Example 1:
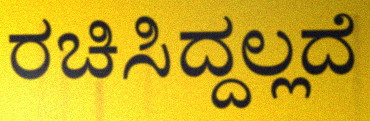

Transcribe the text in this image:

ರಚಿಸಿದ್ದಲ್ಲದೆ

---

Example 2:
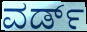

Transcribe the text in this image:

ವರ್ಡ್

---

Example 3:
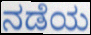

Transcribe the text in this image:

ನಡೆಯ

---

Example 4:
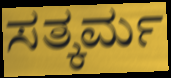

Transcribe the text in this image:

ಸತ್ಕರ್ಮ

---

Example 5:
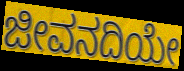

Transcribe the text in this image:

ಜೀವನದಿಯೇ